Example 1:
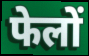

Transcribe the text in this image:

फेलों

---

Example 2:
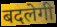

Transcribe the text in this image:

बदलेगी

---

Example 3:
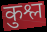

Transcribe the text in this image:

कुश्ल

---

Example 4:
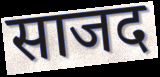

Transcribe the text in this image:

साजद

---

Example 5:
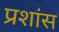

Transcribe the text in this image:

प्रशांस